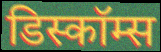
डिस्कॉम्स